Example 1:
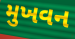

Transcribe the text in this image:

મુખવન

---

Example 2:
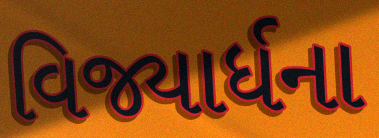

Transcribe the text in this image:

વિજ્યાર્ધના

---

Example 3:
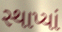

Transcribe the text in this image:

સ્થાપ્યાં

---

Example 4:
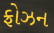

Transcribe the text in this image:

ફ્રોઝન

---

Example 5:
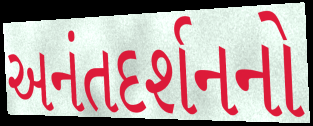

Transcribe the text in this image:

અનંતદર્શનનો